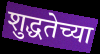
शुद्धतेच्या